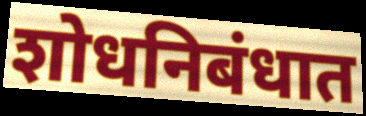
शोधनिबंधात